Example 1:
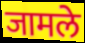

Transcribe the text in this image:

जामले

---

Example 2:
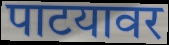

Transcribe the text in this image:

पाटयावर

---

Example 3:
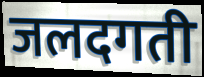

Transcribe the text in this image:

जलदगती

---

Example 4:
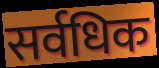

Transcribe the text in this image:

सर्वधिक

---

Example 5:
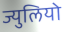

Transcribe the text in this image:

ज्युलियो